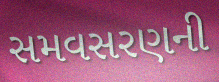
સમવસરણની